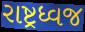
રાષ્ટ્રધ્વજ